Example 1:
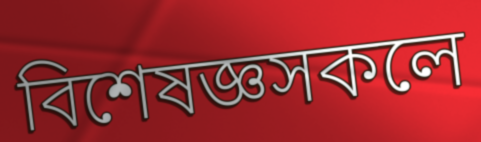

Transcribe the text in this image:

বিশেষজ্ঞসকলে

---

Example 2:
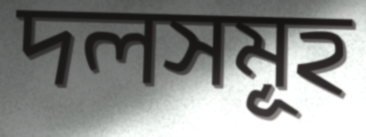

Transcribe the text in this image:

দলসমূহ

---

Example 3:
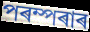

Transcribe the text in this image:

পৰম্পৰাৰ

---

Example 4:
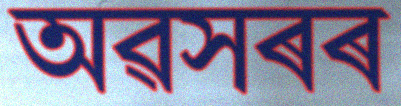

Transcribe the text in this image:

অৱসৰৰ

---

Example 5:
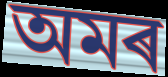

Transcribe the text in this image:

অমৰ